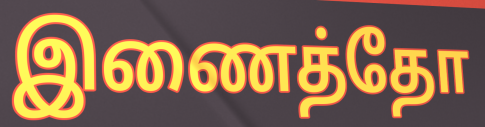
இணைத்தோ